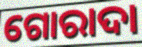
ଗୋରାଦା